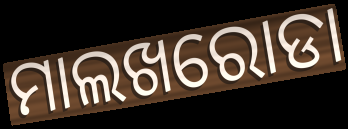
ମାଲଖରୋଡା